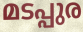
മടപ്പുര